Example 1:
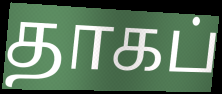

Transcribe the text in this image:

தாகப்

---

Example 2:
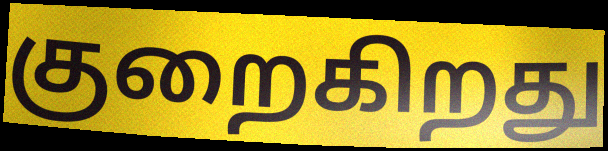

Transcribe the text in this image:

குறைகிறது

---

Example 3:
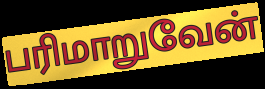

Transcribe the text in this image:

பரிமாறுவேன்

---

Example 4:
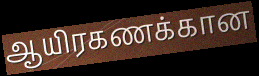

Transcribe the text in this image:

ஆயிரகணக்கான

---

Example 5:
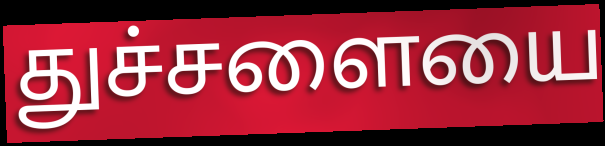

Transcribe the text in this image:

துச்சளையை